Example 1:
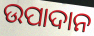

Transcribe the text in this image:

ଉପାଦାନ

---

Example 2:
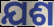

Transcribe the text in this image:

ଯଶ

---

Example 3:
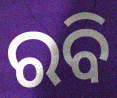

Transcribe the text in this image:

ରବି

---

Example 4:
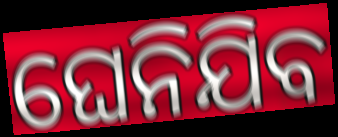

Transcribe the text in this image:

ଘେନିଯିବ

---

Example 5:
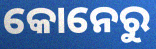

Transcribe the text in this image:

କୋନେରୁ